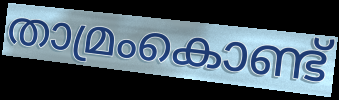
താമ്രംകൊണ്ട്